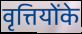
वृत्तियोंके